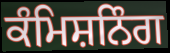
ਕੰਮਿਸ਼ਨਿੰਗ